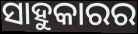
ସାହୁକାରର